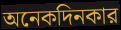
অনেকদিনকার